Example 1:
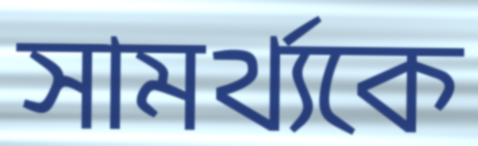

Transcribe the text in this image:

সামর্থ্যকে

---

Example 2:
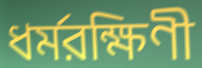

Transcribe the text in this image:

ধর্মরক্ষিণী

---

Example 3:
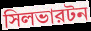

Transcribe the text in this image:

সিলভারটন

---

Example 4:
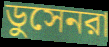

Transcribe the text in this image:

ডুসেনরা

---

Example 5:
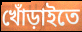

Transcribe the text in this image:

খোঁড়াইতে